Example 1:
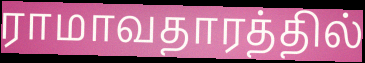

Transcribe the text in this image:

ராமாவதாரத்தில்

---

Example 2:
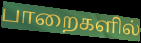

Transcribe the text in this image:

பாறைகளில்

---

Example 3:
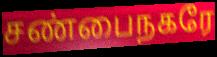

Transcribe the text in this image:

சண்பைநகரே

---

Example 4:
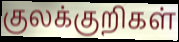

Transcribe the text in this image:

குலக்குறிகள்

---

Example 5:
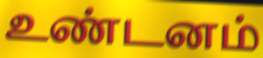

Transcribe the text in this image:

உண்டனம்